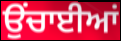
ਉਂਚਾਈਆਂ